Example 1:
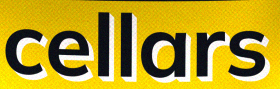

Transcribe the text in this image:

cellars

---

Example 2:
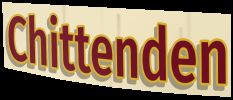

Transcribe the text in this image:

Chittenden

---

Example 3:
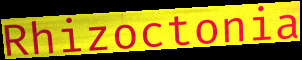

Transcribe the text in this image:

Rhizoctonia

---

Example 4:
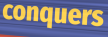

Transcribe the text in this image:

conquers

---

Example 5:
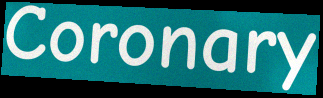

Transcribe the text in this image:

Coronary